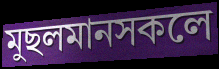
মুছলমানসকলে